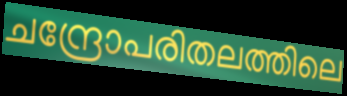
ചന്ദ്രോപരിതലത്തിലെ